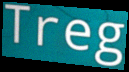
Treg